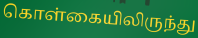
கொள்கையிலிருந்து